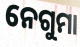
ନେଗୁମା